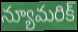
న్యూమరిక్